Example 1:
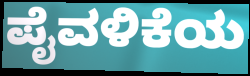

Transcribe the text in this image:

ಪೈವಳಿಕೆಯ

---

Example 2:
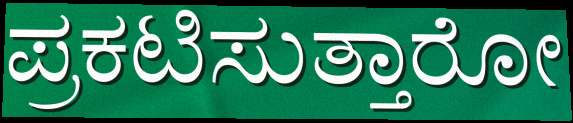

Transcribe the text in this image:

ಪ್ರಕಟಿಸುತ್ತಾರೋ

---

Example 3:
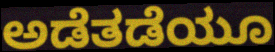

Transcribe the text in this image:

ಅಡೆತಡೆಯೂ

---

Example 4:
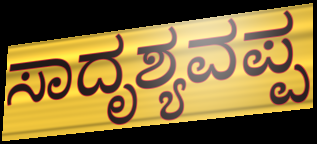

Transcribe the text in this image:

ಸಾದೃಶ್ಯವಪ್ಪ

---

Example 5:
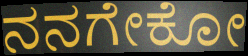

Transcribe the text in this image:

ನನಗೇಕೋ